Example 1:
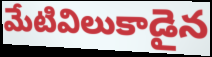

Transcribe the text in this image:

మేటివిలుకాడైన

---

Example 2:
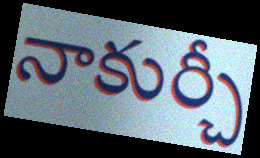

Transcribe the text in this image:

నాకుర్చీ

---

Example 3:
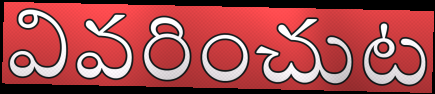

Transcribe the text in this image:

వివరించుట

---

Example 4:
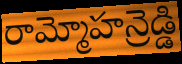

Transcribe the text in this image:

రామ్మోహన్రెడ్డి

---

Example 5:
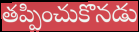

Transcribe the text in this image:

తప్పించుకొనడు